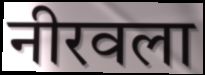
नीरवला